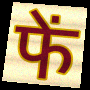
फें